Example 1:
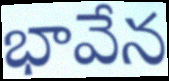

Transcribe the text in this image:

భావేన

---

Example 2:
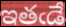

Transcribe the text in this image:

ఇతఁడే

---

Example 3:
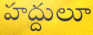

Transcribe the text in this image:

హద్దులూ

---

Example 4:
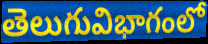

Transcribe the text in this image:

తెలుగువిభాగంలో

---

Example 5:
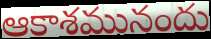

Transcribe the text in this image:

ఆకాశమునందు